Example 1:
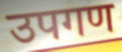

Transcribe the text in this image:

उपगण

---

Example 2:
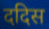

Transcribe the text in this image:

ददिस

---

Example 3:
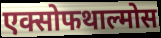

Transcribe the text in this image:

एक्सोफथाल्मोस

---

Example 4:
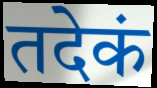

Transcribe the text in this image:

तदेकं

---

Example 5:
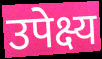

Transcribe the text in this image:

उपेक्ष्य